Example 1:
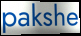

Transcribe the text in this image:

pakshe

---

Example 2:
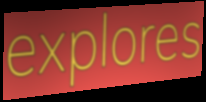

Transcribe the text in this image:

explores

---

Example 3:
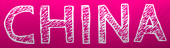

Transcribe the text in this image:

CHINA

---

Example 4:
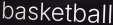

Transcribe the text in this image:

basketball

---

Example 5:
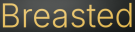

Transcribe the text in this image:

Breasted